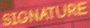
SIGNATURE